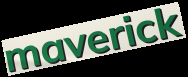
maverick